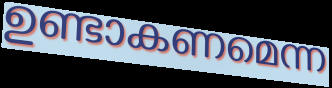
ഉണ്ടാകണമെന്ന